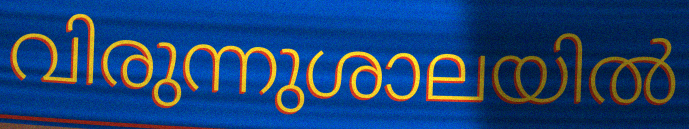
വിരുന്നുശാലയിൽ